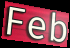
Feb